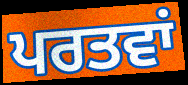
ਪਰਤਵਾਂ